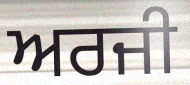
ਅਰਜੀ